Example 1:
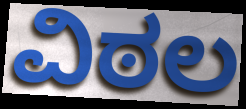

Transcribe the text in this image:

ವಿಠಲ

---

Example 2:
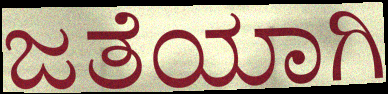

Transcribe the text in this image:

ಜತೆಯಾಗಿ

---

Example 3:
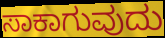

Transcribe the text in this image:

ಸಾಕಾಗುವುದು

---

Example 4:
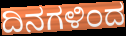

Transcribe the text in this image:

ದಿನಗಳಿಂದ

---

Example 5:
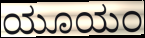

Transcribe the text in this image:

ಯೂಯಂ